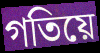
গতিয়ে